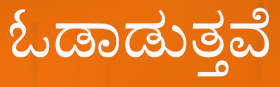
ಓಡಾಡುತ್ತವೆ